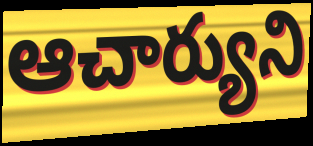
ఆచార్యుని